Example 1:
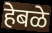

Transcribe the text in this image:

हेबळे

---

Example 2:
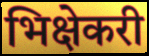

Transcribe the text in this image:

भिक्षेकरी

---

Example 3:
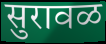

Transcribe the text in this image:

सुरावळ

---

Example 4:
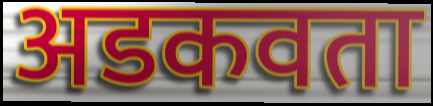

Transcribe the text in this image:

अडकवता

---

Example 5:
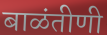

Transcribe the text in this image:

बाळंतीणी